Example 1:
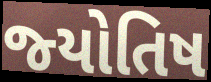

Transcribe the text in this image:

જ્‍યોતિષ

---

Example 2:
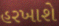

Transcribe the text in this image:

હરખાશે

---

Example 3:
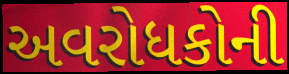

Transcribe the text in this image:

અવરોધકોની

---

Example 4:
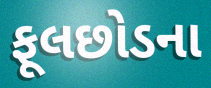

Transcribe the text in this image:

ફૂલછોડના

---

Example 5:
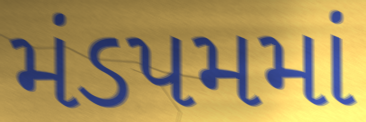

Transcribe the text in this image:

મંડપમમાં